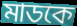
মাডকে